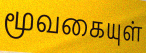
மூவகையுள்